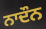
ਨਾਦੌਨ